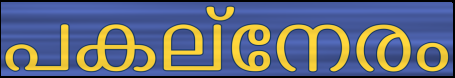
പകല്നേരം